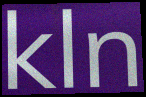
kln